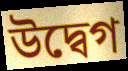
উদ্বেগ